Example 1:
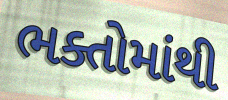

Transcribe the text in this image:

ભક્તોમાંથી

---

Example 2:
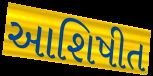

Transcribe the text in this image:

આશિષીત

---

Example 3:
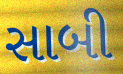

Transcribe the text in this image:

સાબી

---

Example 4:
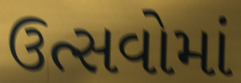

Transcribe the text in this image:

ઉત્સવોમાં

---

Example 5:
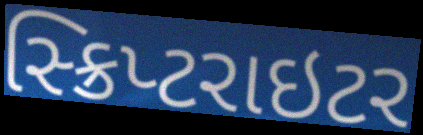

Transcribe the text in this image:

સ્ક્રિપ્ટરાઇટર